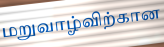
மறுவாழ்விற்கான